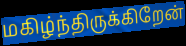
மகிழ்ந்திருக்கிறேன்